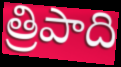
త్రిపాది